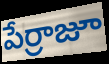
పేర్రాజూ